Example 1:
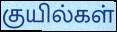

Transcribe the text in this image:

குயில்கள்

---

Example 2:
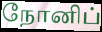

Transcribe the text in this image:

நோனிப்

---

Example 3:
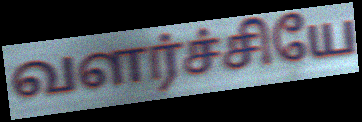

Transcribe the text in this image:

வளர்ச்சியே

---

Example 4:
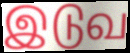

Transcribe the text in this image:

இடுவ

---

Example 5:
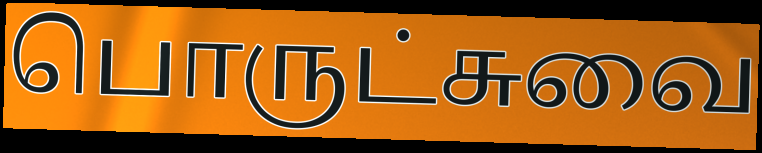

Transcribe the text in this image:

பொருட்சுவை